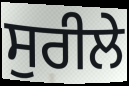
ਸੁਰੀਲੇ